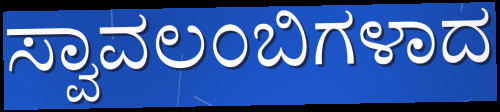
ಸ್ವಾವಲಂಬಿಗಳಾದ